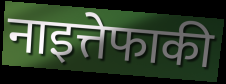
नाइत्तेफाकी